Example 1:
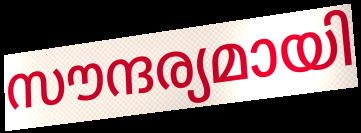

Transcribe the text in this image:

സൗന്ദര്യമായി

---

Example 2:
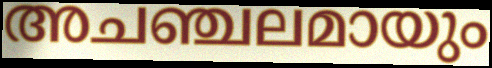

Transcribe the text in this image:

അചഞ്ചലമായും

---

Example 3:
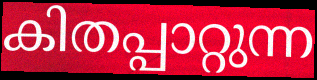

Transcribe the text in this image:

കിതപ്പാറ്റുന്ന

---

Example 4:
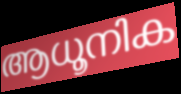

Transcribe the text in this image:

ആധൂനിക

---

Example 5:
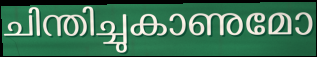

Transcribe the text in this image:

ചിന്തിച്ചുകാണുമോ